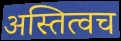
अस्तित्वच